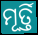
ମୂର୍ତ୍ତି